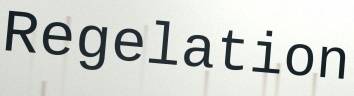
Regelation